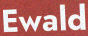
Ewald